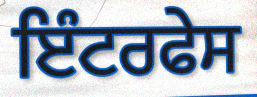
ਇੰਟਰਫੇਸ